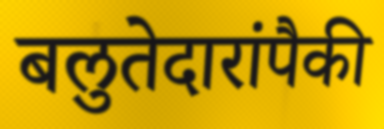
बलुतेदारांपैकी